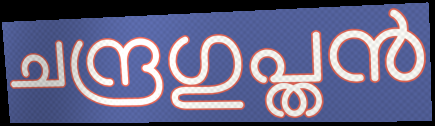
ചന്ദ്രഗുപ്തൻ